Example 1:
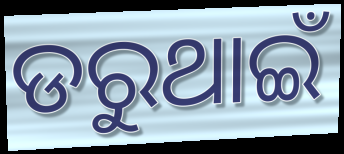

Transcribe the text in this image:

ଡରୁଥାଇଁ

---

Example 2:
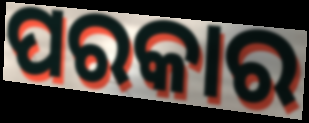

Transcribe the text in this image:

ପରକାର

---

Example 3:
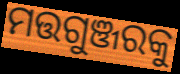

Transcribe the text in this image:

ମତ୍ତଗୁଞ୍ଜରକୁ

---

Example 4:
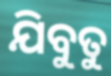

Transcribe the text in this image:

ଯିବୁତୁ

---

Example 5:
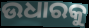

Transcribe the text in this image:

ଉଧାରକୁ